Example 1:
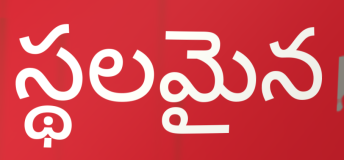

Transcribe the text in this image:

స్థలమైన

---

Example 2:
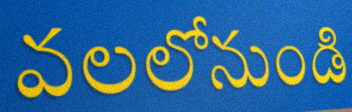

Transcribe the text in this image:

వలలోనుండి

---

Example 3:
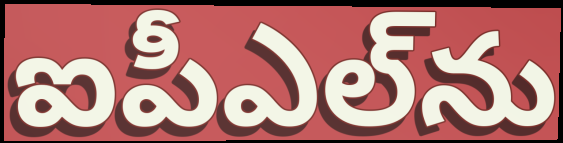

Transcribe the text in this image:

ఐపీఎల్‌ను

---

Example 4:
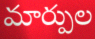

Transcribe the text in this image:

మార్పుల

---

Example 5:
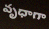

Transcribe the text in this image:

వృధాగా